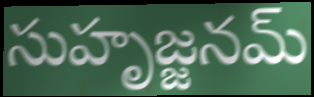
సుహృజ్జనమ్